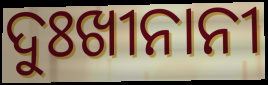
ଦୁଃଖୀନାନୀ